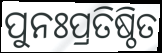
ପୁନଃପ୍ରତିଷ୍ଠିତ